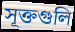
সূক্তগুলি